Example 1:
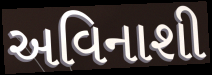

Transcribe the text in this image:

અવિનાશી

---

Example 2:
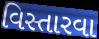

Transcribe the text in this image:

વિસ્તારવા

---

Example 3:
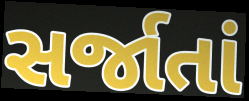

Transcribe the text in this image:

સર્જાતાં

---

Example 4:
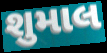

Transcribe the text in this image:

શુમાલ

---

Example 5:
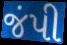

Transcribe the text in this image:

જંપી